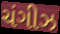
ચંગીઝ